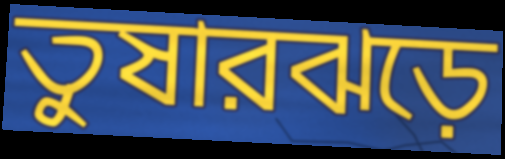
তুষারঝড়ে